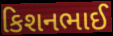
કિશનભાઈ